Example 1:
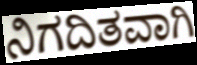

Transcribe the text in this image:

ನಿಗದಿತವಾಗಿ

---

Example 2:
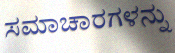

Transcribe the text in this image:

ಸಮಾಚಾರಗಳನ್ನು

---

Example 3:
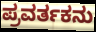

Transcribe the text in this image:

ಪ್ರವರ್ತಕನು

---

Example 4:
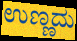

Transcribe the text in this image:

ಉಣ್ಣದು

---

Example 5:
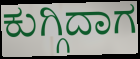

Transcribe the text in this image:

ಕುಗ್ಗಿದಾಗ